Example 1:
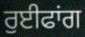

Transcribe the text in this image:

ਰੁਈਫਾਂਗ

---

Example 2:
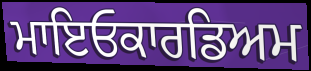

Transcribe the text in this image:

ਮਾਇਓਕਾਰਡਿਅਮ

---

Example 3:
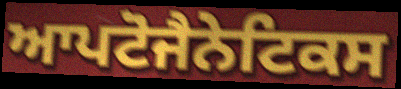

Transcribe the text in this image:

ਆਪਟੋਜੈਨੇਟਿਕਸ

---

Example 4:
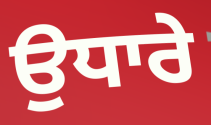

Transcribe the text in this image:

ਉਧਾਰੇ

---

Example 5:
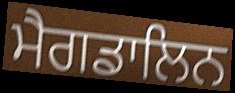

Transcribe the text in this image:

ਮੈਗਡਾਲਿਨ